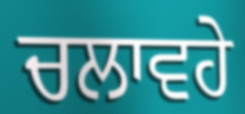
ਚਲਾਵਹੇ